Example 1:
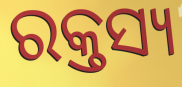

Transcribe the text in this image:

ରକ୍ତସ୍ୟ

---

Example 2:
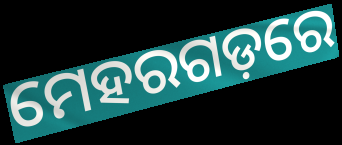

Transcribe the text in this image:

ମେହରଗଡ଼ରେ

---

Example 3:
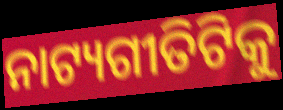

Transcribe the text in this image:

ନାଟ୍ୟଗୀତିଟିକୁ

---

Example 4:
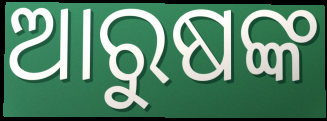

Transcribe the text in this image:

ଆରୁଷଙ୍କ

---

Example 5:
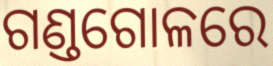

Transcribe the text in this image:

ଗଣ୍ଡଗୋଳରେ